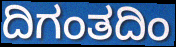
ದಿಗಂತದಿಂ